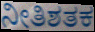
ನೀತಿಶತಕ